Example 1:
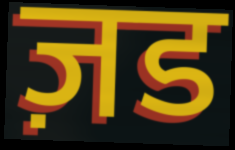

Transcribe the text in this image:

ज़ड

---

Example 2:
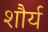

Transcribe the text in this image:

शौर्य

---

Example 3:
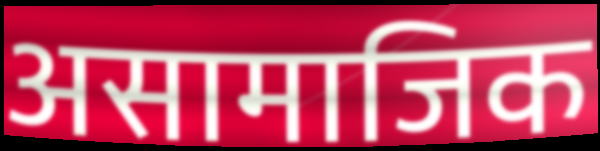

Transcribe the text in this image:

असामाजिक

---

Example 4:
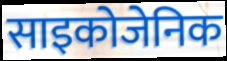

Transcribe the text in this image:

साइकोजेनिक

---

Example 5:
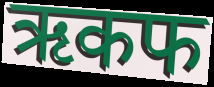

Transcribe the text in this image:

ऋकफ